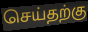
செய்தற்கு